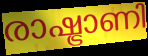
രാഷ്ട്രാണി